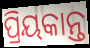
ପ୍ରିୟକାନ୍ତ